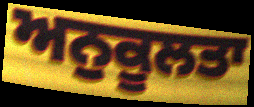
ਅਨੁਕੂਲਤਾ